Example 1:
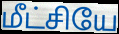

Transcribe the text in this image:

மீட்சியே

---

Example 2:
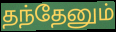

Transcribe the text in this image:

தந்தேனும்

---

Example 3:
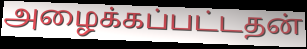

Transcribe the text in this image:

அழைக்கப்பட்டதன்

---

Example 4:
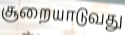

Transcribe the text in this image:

சூறையாடுவது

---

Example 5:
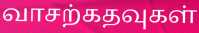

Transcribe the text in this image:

வாசற்கதவுகள்